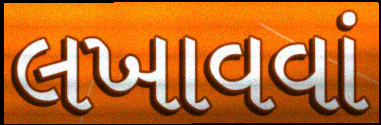
લખાવવાં